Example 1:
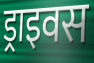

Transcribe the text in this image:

ड्राइवस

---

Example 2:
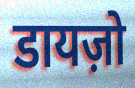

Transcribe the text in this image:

डायज़ो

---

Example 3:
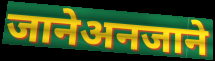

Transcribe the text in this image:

जानेअनजाने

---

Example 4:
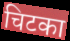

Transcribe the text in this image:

चिटका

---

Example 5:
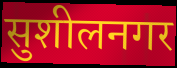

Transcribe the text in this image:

सुशीलनगर